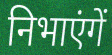
निभाएंगें